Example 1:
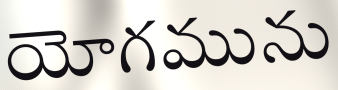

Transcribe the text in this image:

యోగమును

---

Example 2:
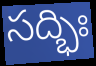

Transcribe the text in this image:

సద్భిః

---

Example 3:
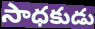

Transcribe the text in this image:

సాధకుడు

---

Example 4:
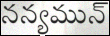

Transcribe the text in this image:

నన్యమున్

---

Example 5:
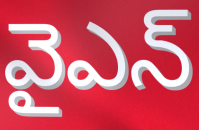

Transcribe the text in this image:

వైఎన్